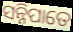
ସନ୍ନିପାତେ